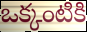
ఒక్కంటికి